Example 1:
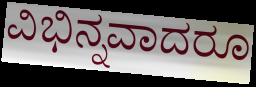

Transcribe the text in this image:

ವಿಭಿನ್ನವಾದರೂ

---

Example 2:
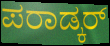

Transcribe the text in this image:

ಪರಾಡ್ಕರ್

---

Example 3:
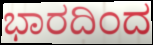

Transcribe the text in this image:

ಭಾರದಿಂದ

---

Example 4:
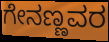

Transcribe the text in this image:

ಗೇನಣ್ಣವರ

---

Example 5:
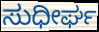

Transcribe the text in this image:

ಸುಧೀರ್ಘ